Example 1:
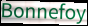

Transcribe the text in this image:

Bonnefoy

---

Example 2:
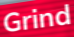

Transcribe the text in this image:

Grind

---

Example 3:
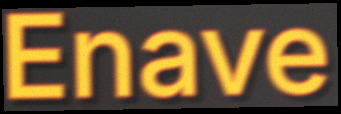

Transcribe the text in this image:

Enave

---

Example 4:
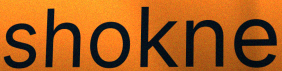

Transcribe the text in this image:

shokne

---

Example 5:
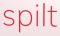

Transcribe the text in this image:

spilt